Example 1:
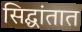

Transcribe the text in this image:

सिद्घांतात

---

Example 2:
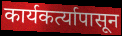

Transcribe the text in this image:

कार्यकर्त्यापासून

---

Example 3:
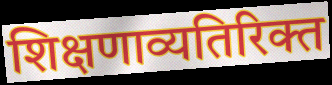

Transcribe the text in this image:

शिक्षणाव्यतिरिक्त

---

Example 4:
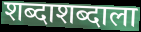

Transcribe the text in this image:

शब्दाशब्दाला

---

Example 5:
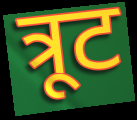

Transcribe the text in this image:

त्रूट